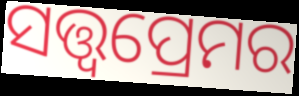
ସତ୍ତ୍ୱପ୍ରେମର